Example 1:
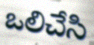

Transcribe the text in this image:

ఒలిచేసి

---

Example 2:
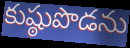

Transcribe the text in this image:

కుష్ఠుపొడను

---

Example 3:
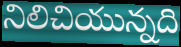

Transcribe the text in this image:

నిలిచియున్నది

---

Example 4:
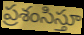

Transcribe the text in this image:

ప్రశంసిస్తూ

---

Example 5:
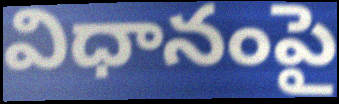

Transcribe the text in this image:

విధానంపై